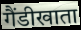
गैंडीखाता